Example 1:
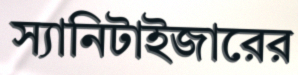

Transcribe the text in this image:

স্যানিটাইজারের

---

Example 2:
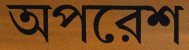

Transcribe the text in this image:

অপরেশ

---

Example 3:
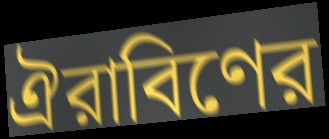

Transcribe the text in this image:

ঐরাবিণের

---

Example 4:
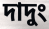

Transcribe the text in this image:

দাদুং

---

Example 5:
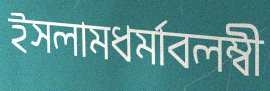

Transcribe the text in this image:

ইসলামধর্মাবলম্বী